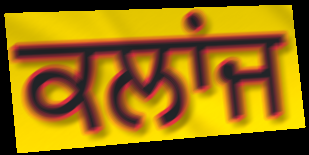
ਕਲਾਂਜ